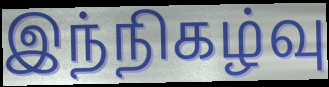
இந்நிகழ்வு